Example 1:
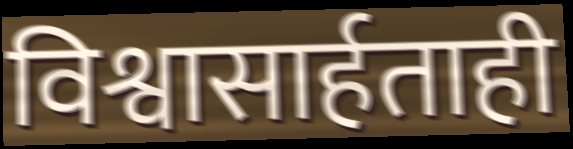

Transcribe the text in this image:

विश्वासार्हताही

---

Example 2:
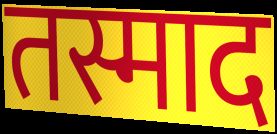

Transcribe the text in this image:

तस्माद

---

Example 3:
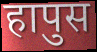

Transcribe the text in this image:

हापुस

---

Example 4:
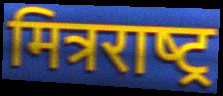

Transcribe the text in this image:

मित्रराष्ट्र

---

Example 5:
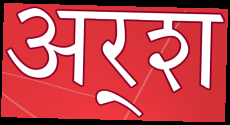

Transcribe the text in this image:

अर्श